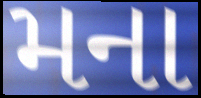
મના